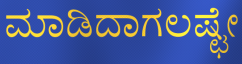
ಮಾಡಿದಾಗಲಷ್ಟೇ